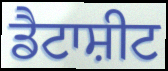
ਡੈਟਾਸ਼ੀਟ